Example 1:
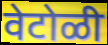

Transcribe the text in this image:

वेटोळी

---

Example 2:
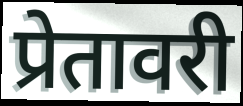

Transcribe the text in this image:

प्रेतावरी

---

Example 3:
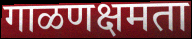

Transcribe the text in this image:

गाळणक्षमता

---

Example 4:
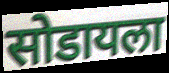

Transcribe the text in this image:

सोडायला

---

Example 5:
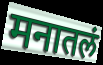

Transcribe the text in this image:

मनातलं